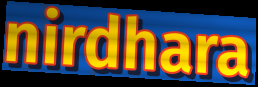
nirdhara